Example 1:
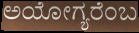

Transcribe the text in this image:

ಅಯೋಗ್ಯರೆಂಬ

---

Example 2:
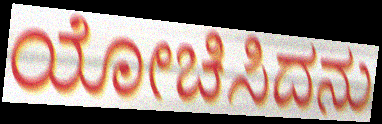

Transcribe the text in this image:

ಯೋಚಿಸಿದನು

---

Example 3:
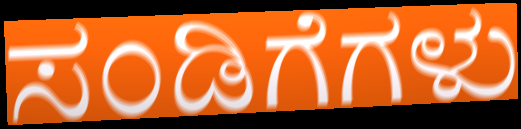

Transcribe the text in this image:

ಸಂಡಿಗೆಗಳು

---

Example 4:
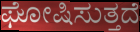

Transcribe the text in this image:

ಘೋಷಿಸುತ್ತದೆ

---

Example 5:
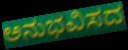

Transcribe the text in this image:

ಅನುಭವಿಸದ